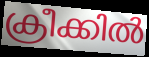
ക്രീക്കിൽ